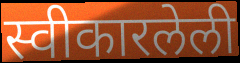
स्वीकारलेली